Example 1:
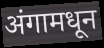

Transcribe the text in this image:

अंगामधून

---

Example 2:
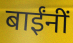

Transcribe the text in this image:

बाईंनीं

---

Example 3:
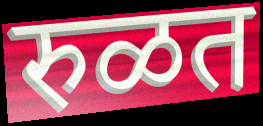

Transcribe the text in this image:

रुळत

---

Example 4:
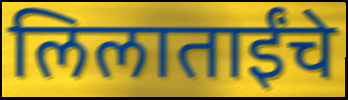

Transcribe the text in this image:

लिलाताईंचे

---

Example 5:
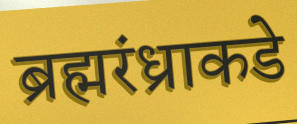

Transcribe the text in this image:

ब्रह्मरंध्राकडे